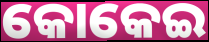
କୋକେଇ